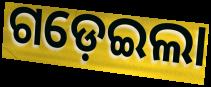
ଗଡ଼େଇଲା